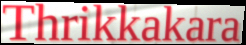
Thrikkakara